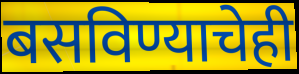
बसविण्याचेही